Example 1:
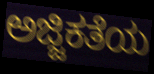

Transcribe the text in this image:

ಅಜ್ಜಿಕತೆಯ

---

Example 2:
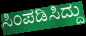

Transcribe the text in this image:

ಸಿಂಪಡಿಸಿದ್ದು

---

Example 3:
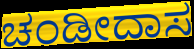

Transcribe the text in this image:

ಚಂಡೀದಾಸ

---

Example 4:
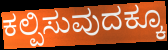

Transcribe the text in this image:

ಕಲ್ಪಿಸುವುದಕ್ಕೂ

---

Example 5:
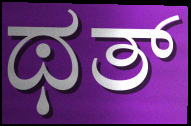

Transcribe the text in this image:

ಥತ್